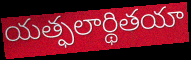
యత్ఫలార్థితయా